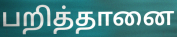
பறித்தானை